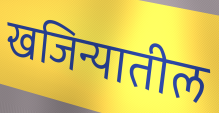
खजिन्यातील